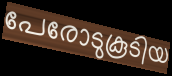
പേരോടുകൂടിയ